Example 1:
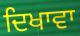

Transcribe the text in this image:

ਦਿਖਾਵਾ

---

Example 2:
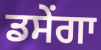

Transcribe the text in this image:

ਡਸੇਂਗਾ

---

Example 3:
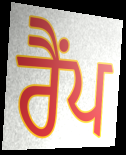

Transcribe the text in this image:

ਰੈਂਪ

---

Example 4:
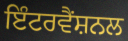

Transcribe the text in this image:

ਇੰਟਰਵੈਂਸ਼ਨਲ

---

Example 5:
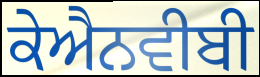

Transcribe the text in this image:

ਕੇਐਨਵੀਬੀ